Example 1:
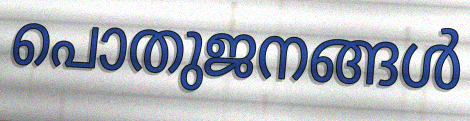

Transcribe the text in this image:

പൊതുജനങ്ങൾ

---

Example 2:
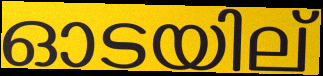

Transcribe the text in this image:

ഓടയില്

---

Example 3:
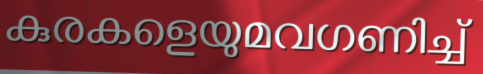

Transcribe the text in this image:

കുരകളെയുമവഗണിച്ച്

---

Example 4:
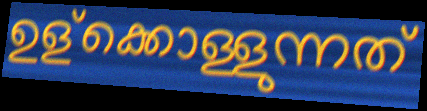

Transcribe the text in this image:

ഉള്ക്കൊള്ളുന്നത്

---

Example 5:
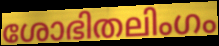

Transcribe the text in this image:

ശോഭിതലിംഗം